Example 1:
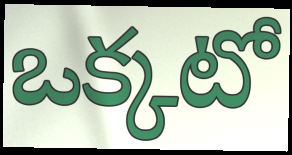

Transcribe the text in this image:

ఒక్కటో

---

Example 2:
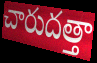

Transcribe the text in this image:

చారుదత్తా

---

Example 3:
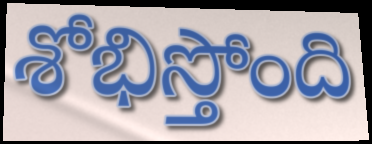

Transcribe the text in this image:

శోభిస్తోంది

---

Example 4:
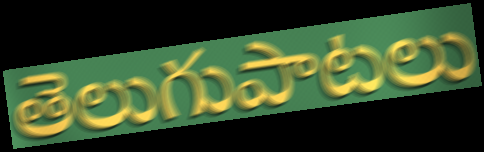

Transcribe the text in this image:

తెలుగుపాటలు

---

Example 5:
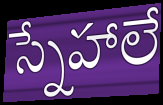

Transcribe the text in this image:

స్నేహాలే